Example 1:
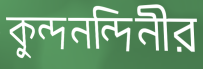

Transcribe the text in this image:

কুন্দনন্দিনীর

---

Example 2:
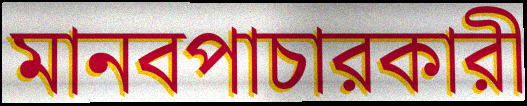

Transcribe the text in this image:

মানবপাচারকারী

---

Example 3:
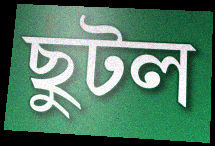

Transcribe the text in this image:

ছুটল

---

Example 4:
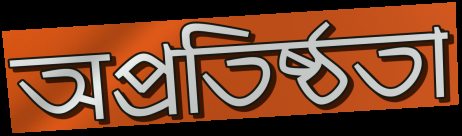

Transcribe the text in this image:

অপ্রতিষ্ঠতা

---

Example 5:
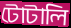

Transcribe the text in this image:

টোটালি